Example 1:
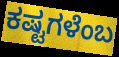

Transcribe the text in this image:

ಕಷ್ಟಗಳೆಂಬ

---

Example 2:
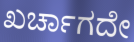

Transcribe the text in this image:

ಖರ್ಚಾಗದೇ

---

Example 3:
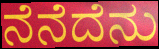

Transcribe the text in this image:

ನೆನೆದೆನು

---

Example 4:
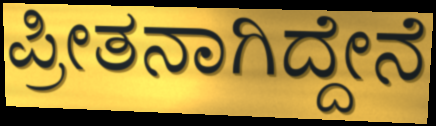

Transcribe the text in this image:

ಪ್ರೀತನಾಗಿದ್ದೇನೆ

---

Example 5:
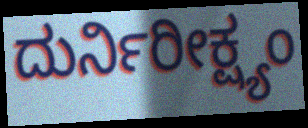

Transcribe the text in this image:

ದುರ್ನಿರೀಕ್ಷ್ಯಂ